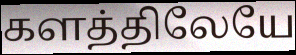
களத்திலேயே